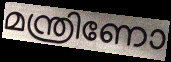
മന്ത്രിണോ